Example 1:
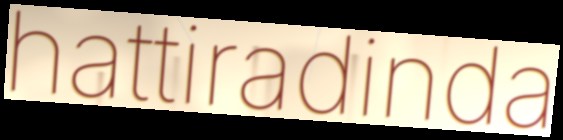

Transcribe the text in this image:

hattiradinda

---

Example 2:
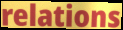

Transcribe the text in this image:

relations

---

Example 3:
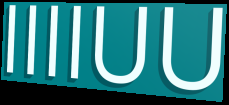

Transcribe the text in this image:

IIIIUU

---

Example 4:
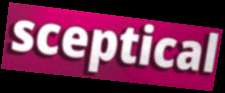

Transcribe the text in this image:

sceptical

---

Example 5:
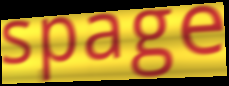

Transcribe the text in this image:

spage